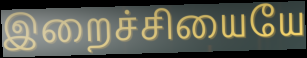
இறைச்சியையே